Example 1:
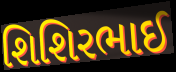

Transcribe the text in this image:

શિશિરભાઈ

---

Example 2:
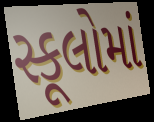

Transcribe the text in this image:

સ્કૂલોમાં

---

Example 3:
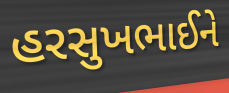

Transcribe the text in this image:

હરસુખભાઈને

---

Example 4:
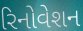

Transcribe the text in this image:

રિનોવેશન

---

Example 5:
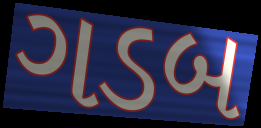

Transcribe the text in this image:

ગડબ